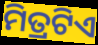
ମିତ୍ରଟିଏ